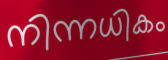
നിന്നധികം